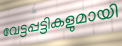
വേട്ടപ്പട്ടികളുമായി